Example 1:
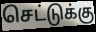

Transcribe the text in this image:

செட்டுக்கு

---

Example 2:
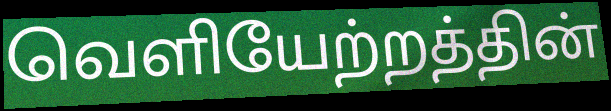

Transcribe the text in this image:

வெளியேற்றத்தின்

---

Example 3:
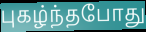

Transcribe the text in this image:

புகழ்ந்தபோது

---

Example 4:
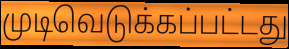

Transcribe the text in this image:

முடிவெடுக்கப்பட்டது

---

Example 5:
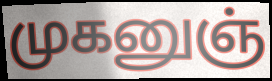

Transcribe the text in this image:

முகனுஞ்